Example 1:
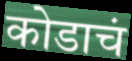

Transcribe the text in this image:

कोडाचं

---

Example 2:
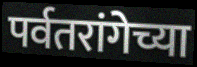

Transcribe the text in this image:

पर्वतरांगेच्या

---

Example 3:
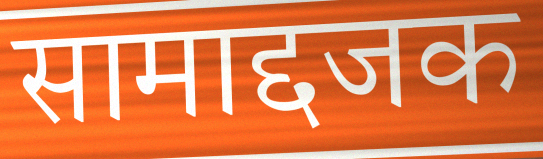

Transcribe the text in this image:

सामाद्दजक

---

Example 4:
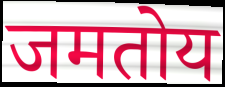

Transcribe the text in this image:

जमतोय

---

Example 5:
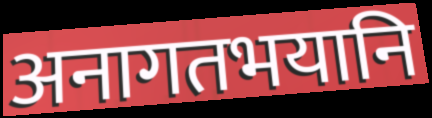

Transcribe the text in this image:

अनागतभयानि